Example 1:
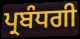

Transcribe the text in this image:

ਪ੍ਰਬੰਧਗੀ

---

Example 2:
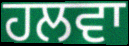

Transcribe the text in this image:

ਹਲਵਾ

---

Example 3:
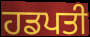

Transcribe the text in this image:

ਹਡਪਤੀ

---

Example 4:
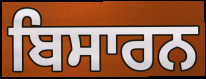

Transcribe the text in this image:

ਬਿਸਾਰਨ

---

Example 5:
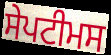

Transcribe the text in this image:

ਸੇਪਟੀਮਸ